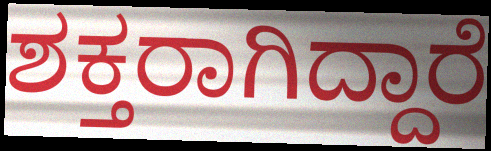
ಶಕ್ತರಾಗಿದ್ದಾರೆ